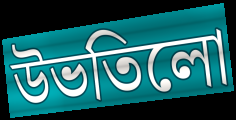
উভতিলো